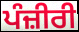
ਪੰਜ਼ੀਰੀ